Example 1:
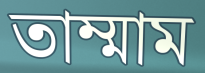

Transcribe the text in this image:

তাম্মাম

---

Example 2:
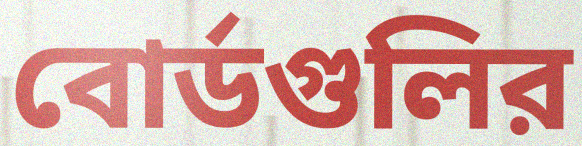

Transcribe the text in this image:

বোর্ডগুলির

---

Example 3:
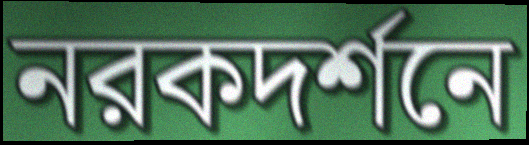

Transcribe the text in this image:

নরকদর্শনে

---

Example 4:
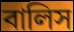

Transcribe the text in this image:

বালিস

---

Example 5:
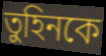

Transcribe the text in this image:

তুহিনকে